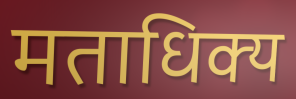
मताधिक्‍य